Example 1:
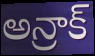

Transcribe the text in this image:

అన్రాక్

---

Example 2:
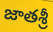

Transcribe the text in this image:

జాతశ్రీ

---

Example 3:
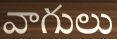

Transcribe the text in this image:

వాగులు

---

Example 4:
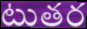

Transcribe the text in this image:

టుతర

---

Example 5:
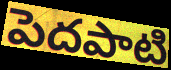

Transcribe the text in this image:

పెదపాటి